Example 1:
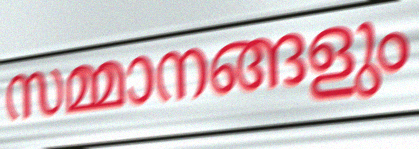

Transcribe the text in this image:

സമ്മാനങ്ങളും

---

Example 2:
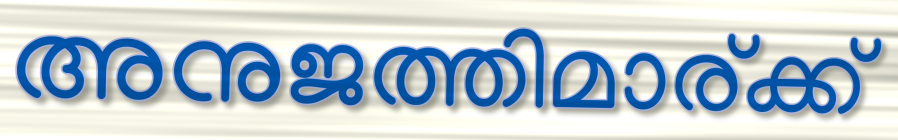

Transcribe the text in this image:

അനുജത്തിമാര്ക്ക്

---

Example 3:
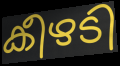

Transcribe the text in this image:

കീഴടി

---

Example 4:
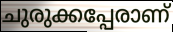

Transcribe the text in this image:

ചുരുക്കപ്പേരാണ്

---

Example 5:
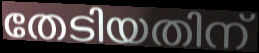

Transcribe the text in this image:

തേടിയതിന്